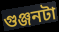
গুঞ্জনটা